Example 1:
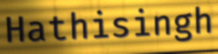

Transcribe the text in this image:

Hathisingh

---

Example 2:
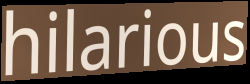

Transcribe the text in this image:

hilarious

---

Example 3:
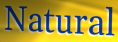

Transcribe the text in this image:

Natural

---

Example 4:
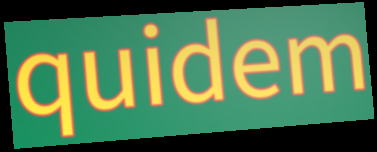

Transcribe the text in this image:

quidem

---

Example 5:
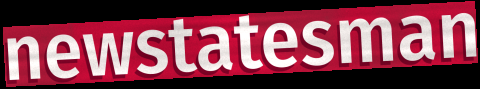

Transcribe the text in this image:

newstatesman